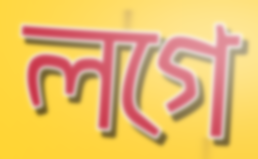
লগে